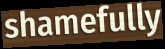
shamefully